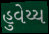
હુવેય્ય